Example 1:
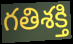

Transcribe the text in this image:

గతిశక్తి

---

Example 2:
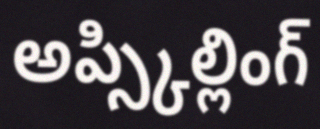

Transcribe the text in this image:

అప్స్కిల్లింగ్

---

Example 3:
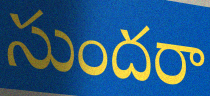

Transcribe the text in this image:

సుందరా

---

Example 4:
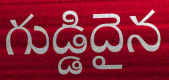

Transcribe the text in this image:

గుడ్డిదైన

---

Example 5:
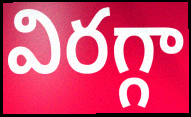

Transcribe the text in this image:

విరగ్గా